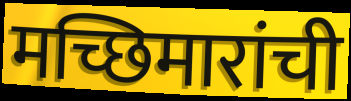
मच्छिमारांची